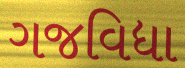
ગજવિદ્યા